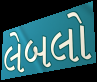
લેબલો